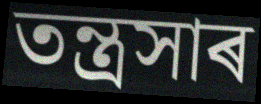
তন্ত্ৰসাৰ